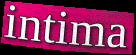
intima